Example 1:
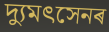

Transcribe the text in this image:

দ্যুমৎসেনৰ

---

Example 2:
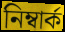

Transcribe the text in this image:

নিম্বাৰ্ক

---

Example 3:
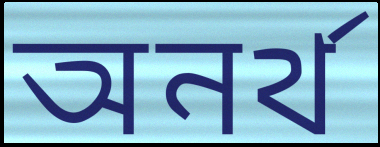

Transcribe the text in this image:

অনৰ্থ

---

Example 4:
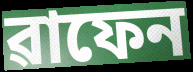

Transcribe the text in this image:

ৱাফেন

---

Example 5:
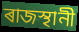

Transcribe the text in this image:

ৰাজস্থানী